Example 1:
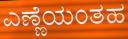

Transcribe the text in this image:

ಎಣ್ಣೆಯಂತಹ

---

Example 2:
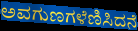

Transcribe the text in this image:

ಅವಗುಣಗಳೆಣಿಸಿದನೆ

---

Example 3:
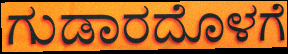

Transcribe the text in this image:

ಗುಡಾರದೊಳಗೆ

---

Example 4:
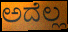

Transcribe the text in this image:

ಅದೆಲ್ಲ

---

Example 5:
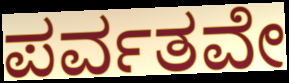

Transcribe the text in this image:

ಪರ್ವತವೇ